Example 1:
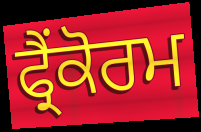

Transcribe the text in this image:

ਫ੍ਰੈਂਕੋਰਮ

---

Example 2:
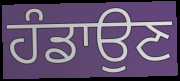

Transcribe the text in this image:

ਹੰਡਾਉਣ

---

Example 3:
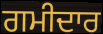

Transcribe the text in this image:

ਗਮੀਦਾਰ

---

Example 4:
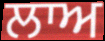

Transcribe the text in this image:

ਲਾਅ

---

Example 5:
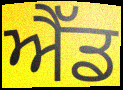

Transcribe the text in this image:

ਐੱਡ